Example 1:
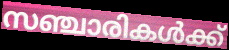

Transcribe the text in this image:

സഞ്ചാരികൾക്ക്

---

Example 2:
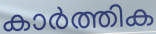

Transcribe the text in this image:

കാർത്തിക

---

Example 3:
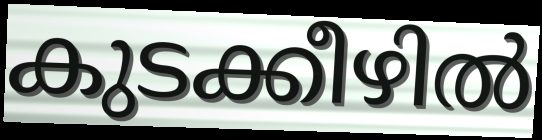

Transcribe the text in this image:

കുടക്കീഴിൽ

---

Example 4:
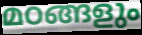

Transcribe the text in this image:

മഠങ്ങളും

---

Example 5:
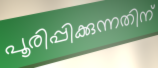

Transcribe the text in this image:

പൂരിപ്പിക്കുന്നതിന്